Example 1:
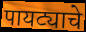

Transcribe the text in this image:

पायट्याचे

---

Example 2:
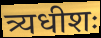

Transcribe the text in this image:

त्र्यधीशः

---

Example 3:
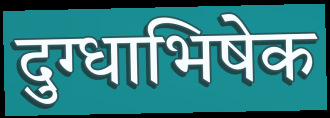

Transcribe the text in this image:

दुग्धाभिषेक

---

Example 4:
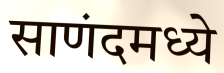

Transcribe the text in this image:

साणंदमध्ये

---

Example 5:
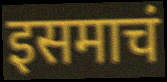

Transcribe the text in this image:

इसमाचं